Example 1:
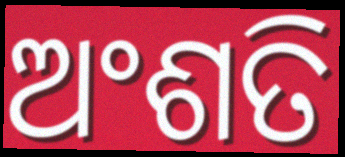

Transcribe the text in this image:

ଅଂଶତି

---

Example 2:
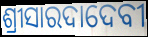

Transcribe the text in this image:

ଶ୍ରୀସାରଦାଦେବୀ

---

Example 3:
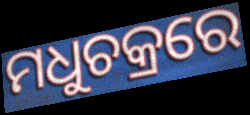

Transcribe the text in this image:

ମଧୁଚକ୍ରରେ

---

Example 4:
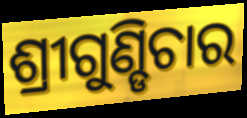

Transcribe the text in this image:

ଶ୍ରୀଗୁଣ୍ଡିଚାର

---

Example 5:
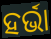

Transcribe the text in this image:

ହର୍ଭା